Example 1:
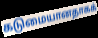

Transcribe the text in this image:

கடுமையானதாகக்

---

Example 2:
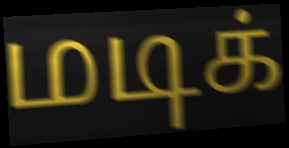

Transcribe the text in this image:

மடிக்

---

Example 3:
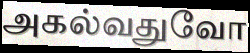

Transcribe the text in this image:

அகல்வதுவோ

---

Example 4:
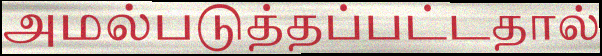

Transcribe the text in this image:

அமல்படுத்தப்பட்டதால்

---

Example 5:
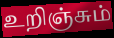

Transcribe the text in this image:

உறிஞ்சும்